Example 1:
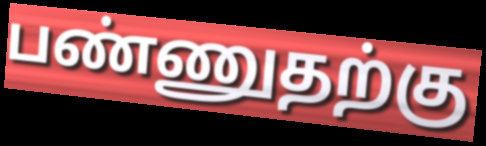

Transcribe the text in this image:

பண்ணுதற்கு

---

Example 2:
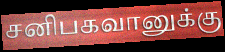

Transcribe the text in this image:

சனிபகவானுக்கு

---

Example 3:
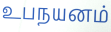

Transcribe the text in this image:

உபநயனம்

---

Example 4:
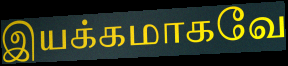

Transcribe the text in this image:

இயக்கமாகவே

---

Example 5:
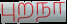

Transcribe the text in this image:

புறநா